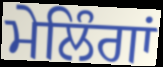
ਮੇਲਿੰਗਾਂ